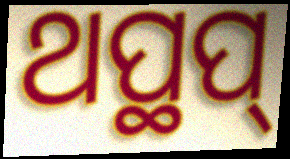
ଥପ୍ଥପ୍